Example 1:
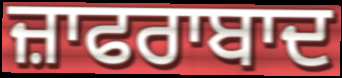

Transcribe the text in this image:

ਜ਼ਾਫਰਾਬਾਦ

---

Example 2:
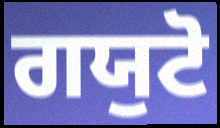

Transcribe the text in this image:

ਗਯੁਟੋ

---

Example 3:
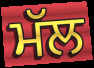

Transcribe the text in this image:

ਮੱਲ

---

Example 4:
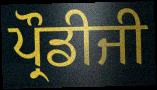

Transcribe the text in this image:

ਪ੍ਰੌਡੀਜੀ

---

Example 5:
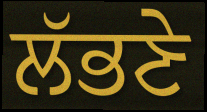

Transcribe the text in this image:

ਲੱਭਣੇ